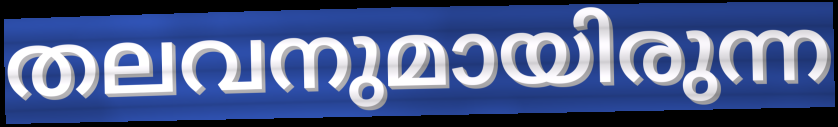
തലവനുമായിരുന്ന